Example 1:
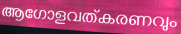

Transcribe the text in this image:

ആഗോളവത്കരണവും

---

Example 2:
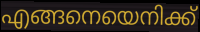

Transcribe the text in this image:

എങ്ങനെയെനിക്ക്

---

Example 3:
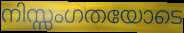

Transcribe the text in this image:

നിസ്സംഗതയോടെ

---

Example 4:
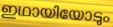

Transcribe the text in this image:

ഇഥായിയോടും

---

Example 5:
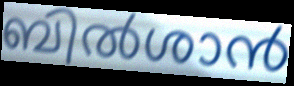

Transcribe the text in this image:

ബിൽശാൻ